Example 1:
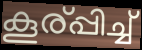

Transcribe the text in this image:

കൂര്പ്പിച്ച്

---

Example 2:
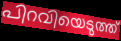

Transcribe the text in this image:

പിറവിയെടുത്ത്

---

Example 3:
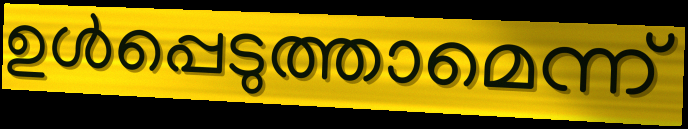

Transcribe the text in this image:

ഉൾപ്പെടുത്താമെന്ന്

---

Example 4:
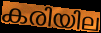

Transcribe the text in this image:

കരിയില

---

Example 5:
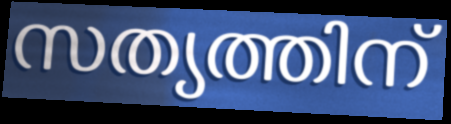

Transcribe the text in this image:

സത്യത്തിന്